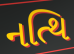
નત્થિ